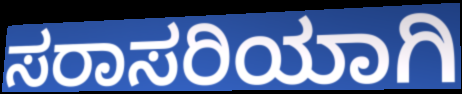
ಸರಾಸರಿಯಾಗಿ